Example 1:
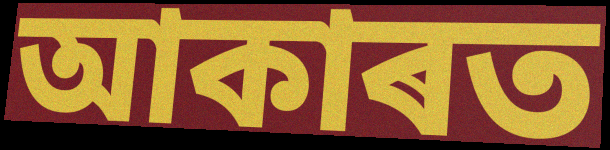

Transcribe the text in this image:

আকাৰত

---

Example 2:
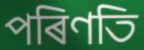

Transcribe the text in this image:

পৰিণতি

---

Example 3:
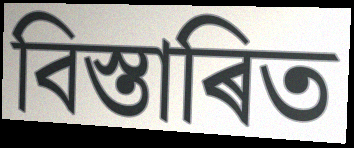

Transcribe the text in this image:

বিস্তাৰিত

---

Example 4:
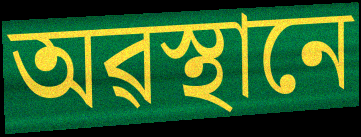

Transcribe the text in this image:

অৱস্থানে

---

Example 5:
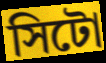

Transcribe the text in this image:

সিটো